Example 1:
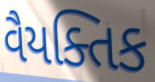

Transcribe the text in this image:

વૈયક્તિક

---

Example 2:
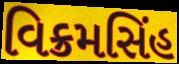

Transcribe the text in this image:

વિક્રમસિંહ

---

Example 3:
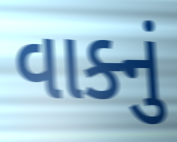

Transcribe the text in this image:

વાક્નું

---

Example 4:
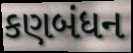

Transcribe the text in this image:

કણબંધન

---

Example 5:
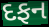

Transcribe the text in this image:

દફન